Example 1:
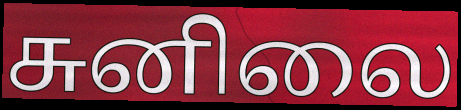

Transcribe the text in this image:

சுனிலை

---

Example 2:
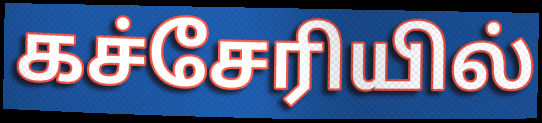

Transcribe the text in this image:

கச்சேரியில்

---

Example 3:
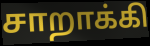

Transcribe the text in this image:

சாறாக்கி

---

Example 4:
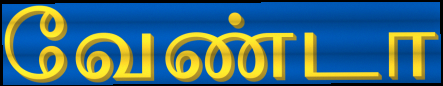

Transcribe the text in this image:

வேண்டா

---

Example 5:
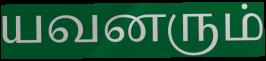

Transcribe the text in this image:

யவனரும்